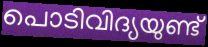
പൊടിവിദ്യയുണ്ട്